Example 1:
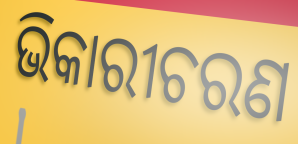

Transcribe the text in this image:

ଭିକାରୀଚରଣ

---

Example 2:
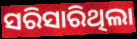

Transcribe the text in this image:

ସରିସାରିଥିଲା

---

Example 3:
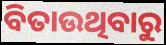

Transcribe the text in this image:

ବିତାଉଥିବାରୁ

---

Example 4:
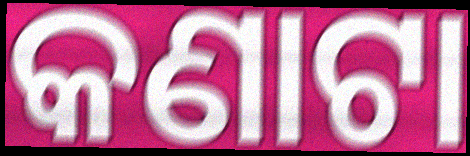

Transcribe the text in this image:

କଣାଟା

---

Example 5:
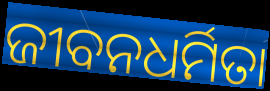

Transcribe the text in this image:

ଜୀବନଧର୍ମିତା